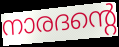
നാരദന്റെ